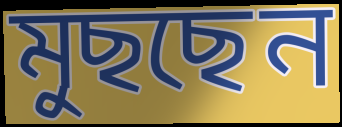
মুছছেন